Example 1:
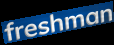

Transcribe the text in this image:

freshman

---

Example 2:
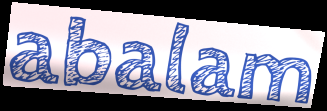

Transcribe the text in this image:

abalam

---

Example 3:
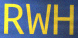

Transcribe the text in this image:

RWH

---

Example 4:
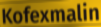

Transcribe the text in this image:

Kofexmalin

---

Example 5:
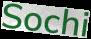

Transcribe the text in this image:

Sochi